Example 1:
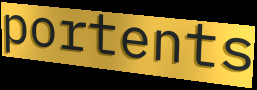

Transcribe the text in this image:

portents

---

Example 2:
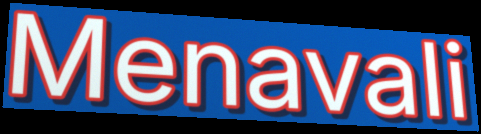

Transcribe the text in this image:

Menavali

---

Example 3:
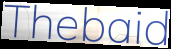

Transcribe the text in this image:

Thebaid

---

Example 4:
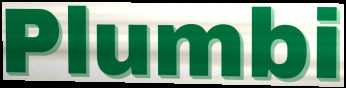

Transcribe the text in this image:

Plumbi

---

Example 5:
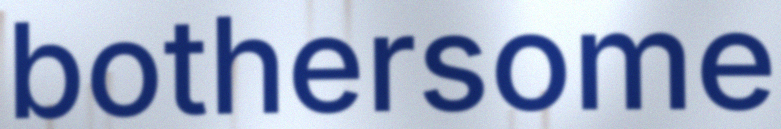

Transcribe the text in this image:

bothersome